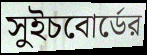
সুইচবোর্ডের